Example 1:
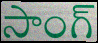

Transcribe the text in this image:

సాంగ్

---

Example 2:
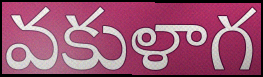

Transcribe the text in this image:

వకుళాగ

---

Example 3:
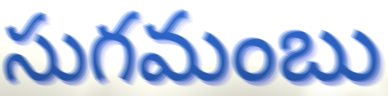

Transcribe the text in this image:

సుగమంబు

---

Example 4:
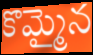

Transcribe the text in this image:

కొమ్మైన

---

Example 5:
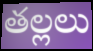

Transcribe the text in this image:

తల్లలు